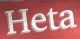
Heta